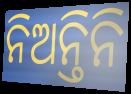
ନିଅନ୍ତିନି